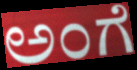
ಅಂಗೆ